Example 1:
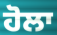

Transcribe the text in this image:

ਹੋਲਾ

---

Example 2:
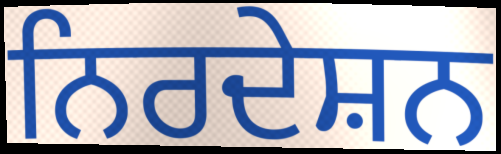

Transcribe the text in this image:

ਨਿਰਦੇਸ਼ਨ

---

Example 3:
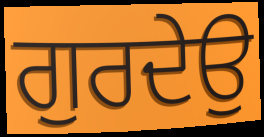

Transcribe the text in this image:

ਗੁਰਦੇਉ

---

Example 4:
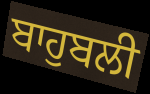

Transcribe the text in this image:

ਬਾਹੁਬਲੀ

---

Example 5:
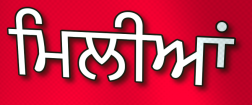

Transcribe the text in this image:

ਮਿਲੀਆਂ